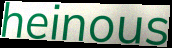
heinous